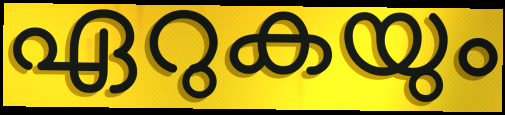
ഏറുകയും